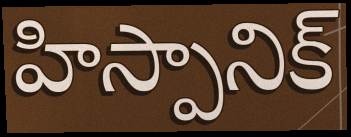
హిస్పానిక్